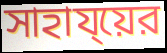
সাহায্য়ের